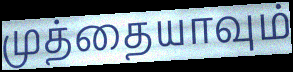
முத்தையாவும்